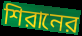
শিরানের